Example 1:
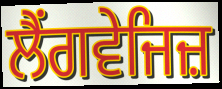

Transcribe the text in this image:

ਲੈਂਗਵੇਜਿਜ਼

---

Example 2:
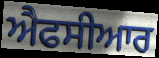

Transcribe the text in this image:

ਐਫਸੀਆਰ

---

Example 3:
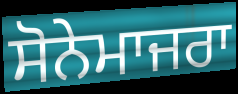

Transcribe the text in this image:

ਸੋਨੇਮਾਜਰਾ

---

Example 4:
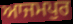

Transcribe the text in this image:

ਆਜਮਪੁਰ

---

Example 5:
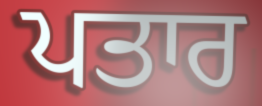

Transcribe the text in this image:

ਪਤਾਰ